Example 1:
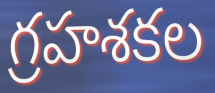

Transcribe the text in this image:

గ్రహశకల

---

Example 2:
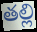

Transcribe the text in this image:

తల్లి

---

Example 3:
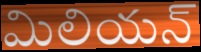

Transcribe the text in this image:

మిలియన్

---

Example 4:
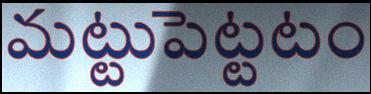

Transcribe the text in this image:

మట్టుపెట్టటం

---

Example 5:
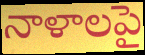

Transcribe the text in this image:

నాళాలపై